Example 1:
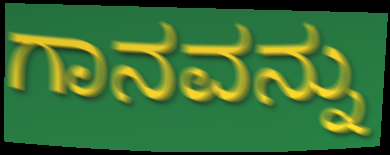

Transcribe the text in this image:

ಗಾನವನ್ನು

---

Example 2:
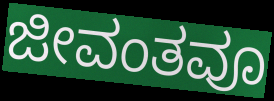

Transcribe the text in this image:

ಜೀವಂತವೂ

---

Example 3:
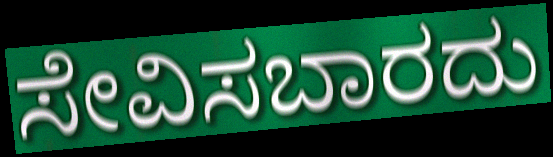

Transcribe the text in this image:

ಸೇವಿಸಬಾರದು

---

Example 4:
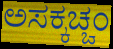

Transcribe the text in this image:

ಅಸಕ್ಕಚ್ಚಂ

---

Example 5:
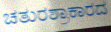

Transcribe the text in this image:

ಚತುರಶ್ರಾಕಾರದ